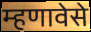
म्हणावेसे